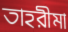
তাহরীমা